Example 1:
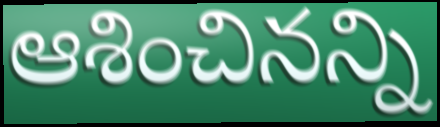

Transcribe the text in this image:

ఆశించినన్ని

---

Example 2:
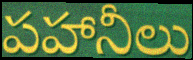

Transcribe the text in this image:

పహానీలు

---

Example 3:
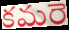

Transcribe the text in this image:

కమరె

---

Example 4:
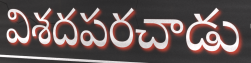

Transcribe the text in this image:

విశదపరచాడు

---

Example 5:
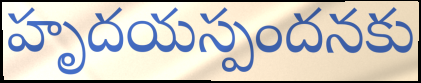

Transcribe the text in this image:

హృదయస్పందనకు